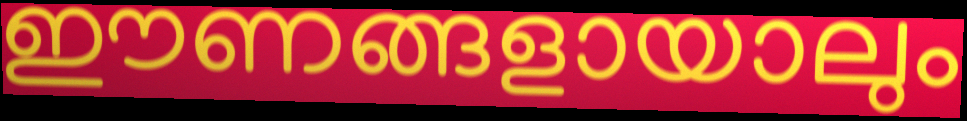
ഈണങ്ങളായാലും